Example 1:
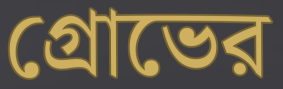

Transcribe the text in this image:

গ্রোভের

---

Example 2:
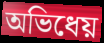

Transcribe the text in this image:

অভিধেয়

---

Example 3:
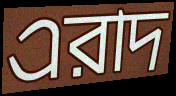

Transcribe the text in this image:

এরাদ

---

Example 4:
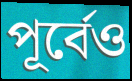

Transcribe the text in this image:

পূর্বেও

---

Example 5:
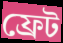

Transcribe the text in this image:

ফ্রেট